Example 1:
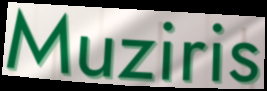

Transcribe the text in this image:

Muziris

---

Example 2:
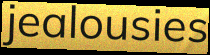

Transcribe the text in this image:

jealousies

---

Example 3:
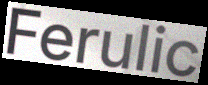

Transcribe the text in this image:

Ferulic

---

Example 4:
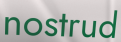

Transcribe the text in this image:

nostrud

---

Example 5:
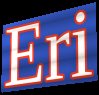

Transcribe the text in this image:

Eri